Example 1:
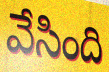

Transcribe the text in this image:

వేసింది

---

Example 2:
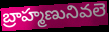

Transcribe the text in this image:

బ్రాహ్మణునివలె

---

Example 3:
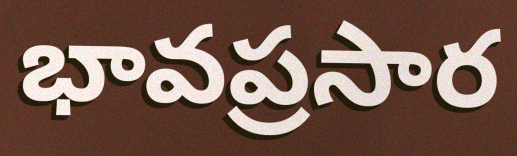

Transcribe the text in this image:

భావప్రసార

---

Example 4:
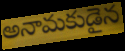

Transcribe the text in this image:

అనామకుడైన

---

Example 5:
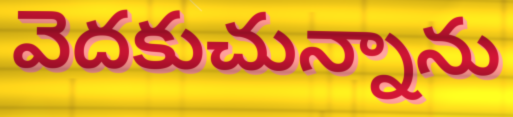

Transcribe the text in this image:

వెదకుచున్నాను